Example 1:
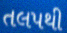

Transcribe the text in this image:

તલપથી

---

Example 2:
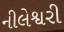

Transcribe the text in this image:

નીલેશ્વરી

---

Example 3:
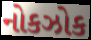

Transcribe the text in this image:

નોકઝોક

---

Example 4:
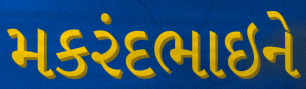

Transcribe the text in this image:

મકરંદભાઇને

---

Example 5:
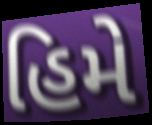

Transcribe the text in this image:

હિમે